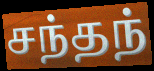
சந்தந்